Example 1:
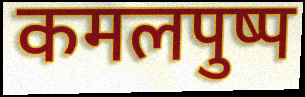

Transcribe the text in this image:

कमलपुष्प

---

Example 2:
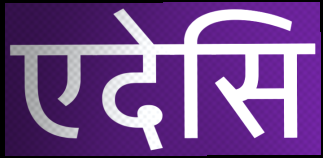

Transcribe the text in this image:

एदेसि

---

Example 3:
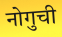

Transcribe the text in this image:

नोगुची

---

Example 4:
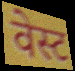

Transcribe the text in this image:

वेस्ट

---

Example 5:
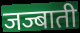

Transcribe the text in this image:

जज्बाती